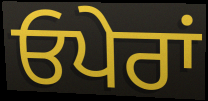
ਓਪੇਰਾਂ